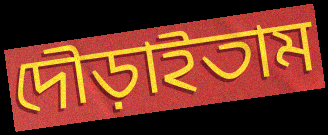
দৌড়াইতাম